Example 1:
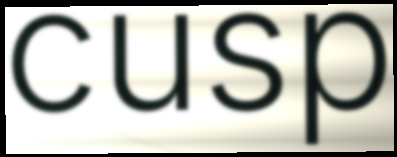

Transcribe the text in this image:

cusp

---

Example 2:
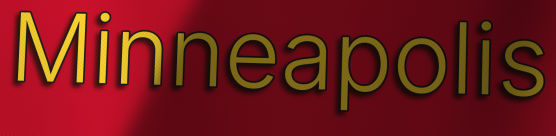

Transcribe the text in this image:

Minneapolis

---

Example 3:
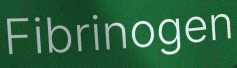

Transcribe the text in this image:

Fibrinogen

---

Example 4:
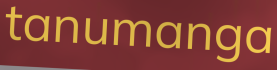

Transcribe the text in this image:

tanumanga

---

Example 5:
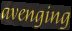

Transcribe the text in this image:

avenging